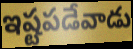
ఇష్టపడేవాడు